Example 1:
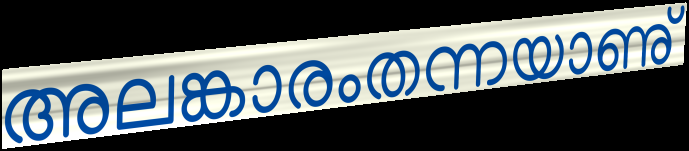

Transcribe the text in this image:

അലങ്കാരംതന്നയാണു്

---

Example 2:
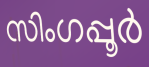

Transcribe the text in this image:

സിംഗപ്പൂർ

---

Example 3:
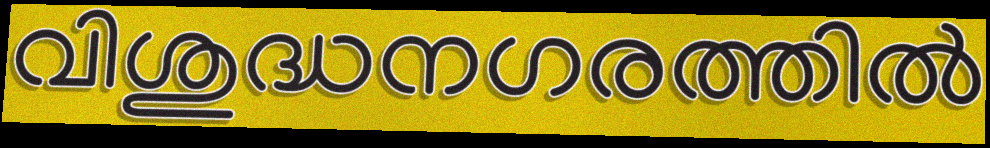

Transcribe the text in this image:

വിശുദ്ധനഗരത്തിൽ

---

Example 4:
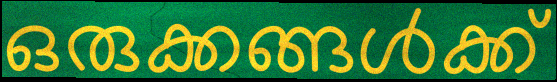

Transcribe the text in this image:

ഒരുക്കങ്ങൾക്ക്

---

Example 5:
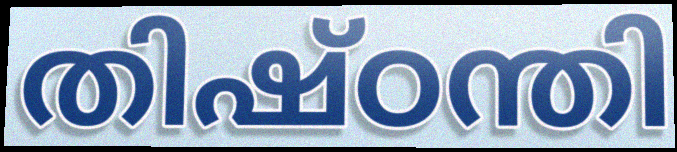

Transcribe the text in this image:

തിഷ്ഠന്തി